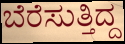
ಬೆರೆಸುತ್ತಿದ್ದ